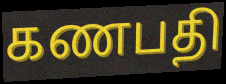
கணபதி